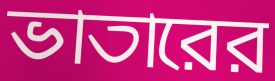
ভাতারের